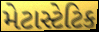
મેટાસ્ટેટિક